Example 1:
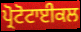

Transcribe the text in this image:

ਪ੍ਰੋਟੋਟਾਈਕਲ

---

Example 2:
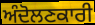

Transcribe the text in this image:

ਅੰਦੋਲਣਕਾਰੀ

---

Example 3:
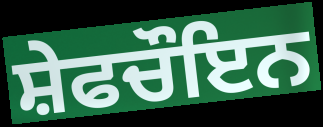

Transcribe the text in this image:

ਸ਼ੇਫਚੌਇਨ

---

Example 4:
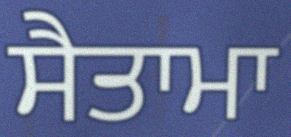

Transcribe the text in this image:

ਸੈਤਾਮਾ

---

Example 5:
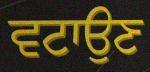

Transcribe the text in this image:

ਵਟਾਉਣ